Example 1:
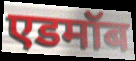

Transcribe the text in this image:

एडमॉब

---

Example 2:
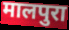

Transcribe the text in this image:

मालपुरा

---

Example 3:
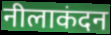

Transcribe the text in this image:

नीलाकंदन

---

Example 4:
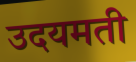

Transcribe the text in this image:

उदयमती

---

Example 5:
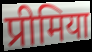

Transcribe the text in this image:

प्रीमिया